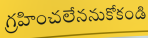
గ్రహించలేననుకోకండి